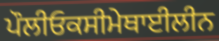
ਪੌਲੀਓਕਸੀਮੇਥਾਈਲੀਨ